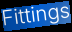
Fittings